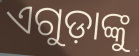
ଏଗୁଡ଼ାଙ୍କୁ